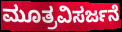
ಮೂತ್ರವಿಸರ್ಜನೆ